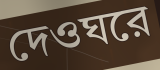
দেওঘরে